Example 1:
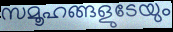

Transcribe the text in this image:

സമൂഹങ്ങളുടേയും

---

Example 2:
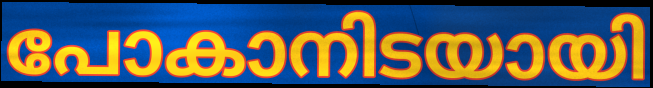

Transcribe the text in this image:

പോകാനിടയായി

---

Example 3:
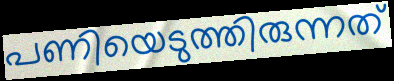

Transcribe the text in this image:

പണിയെടുത്തിരുന്നത്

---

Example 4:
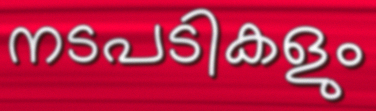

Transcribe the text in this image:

നടപടികളും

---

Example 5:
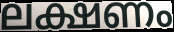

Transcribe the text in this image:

ലക്ഷണം